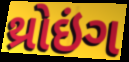
થ્રોઇંગ